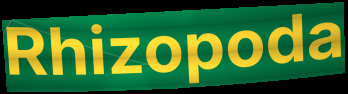
Rhizopoda